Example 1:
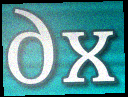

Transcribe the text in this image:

dx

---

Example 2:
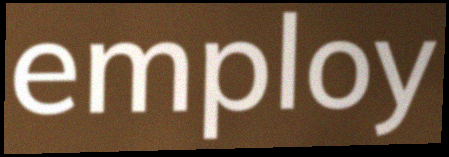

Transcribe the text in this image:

employ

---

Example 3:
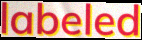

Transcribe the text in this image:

labeled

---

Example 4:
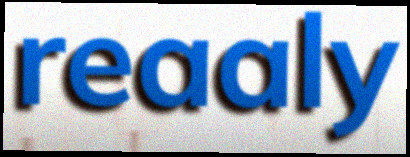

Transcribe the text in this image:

reaaly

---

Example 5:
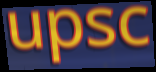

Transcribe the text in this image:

upsc